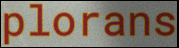
plorans